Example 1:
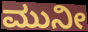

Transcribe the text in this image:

ಮುನೀ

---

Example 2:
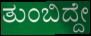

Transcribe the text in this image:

ತುಂಬಿದ್ದೇ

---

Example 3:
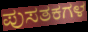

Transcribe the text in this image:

ಪುಸತಕಗಳ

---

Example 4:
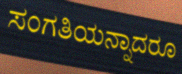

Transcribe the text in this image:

ಸಂಗತಿಯನ್ನಾದರೂ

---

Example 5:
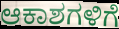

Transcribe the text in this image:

ಆಕಾಶಗಳಿಗೆ